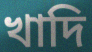
খাদি